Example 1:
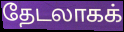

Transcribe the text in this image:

தேடலாகக்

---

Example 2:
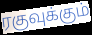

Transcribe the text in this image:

ரகுவுக்கும்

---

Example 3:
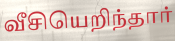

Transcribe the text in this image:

வீசியெறிந்தார்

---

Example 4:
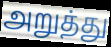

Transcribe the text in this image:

அறுத்து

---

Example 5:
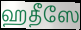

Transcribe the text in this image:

ஹதீஸே